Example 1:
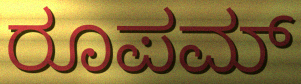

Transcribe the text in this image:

ರೂಪಮ್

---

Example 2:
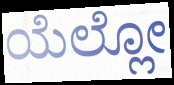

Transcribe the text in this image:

ಯೆಲ್ಲೋ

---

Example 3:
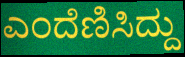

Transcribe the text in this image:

ಎಂದೆಣಿಸಿದ್ದು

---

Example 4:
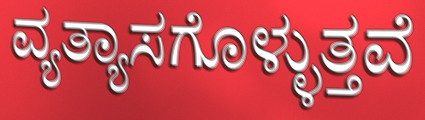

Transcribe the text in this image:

ವ್ಯತ್ಯಾಸಗೊಳ್ಳುತ್ತವೆ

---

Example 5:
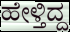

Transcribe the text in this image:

ಹೇಳ್ತಿದ್ದ